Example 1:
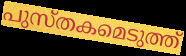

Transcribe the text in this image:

പുസ്തകമെടുത്ത്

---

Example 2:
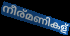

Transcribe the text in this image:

നീര്മണികള്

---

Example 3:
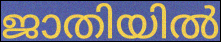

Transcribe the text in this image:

ജാതിയിൽ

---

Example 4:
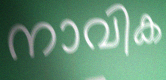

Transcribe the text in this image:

നാവിക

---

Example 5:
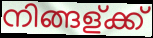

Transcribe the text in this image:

നിങ്ങള്ക്ക്